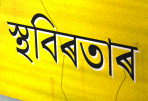
স্থবিৰতাৰ